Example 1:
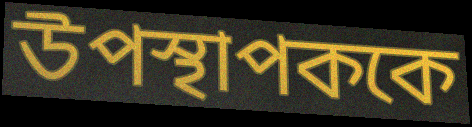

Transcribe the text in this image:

উপস্থাপককে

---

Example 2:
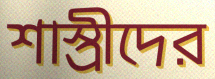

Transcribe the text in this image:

শাস্ত্রীদের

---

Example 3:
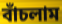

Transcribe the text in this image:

বাঁচলাম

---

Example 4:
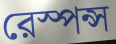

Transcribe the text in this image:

রেস্পন্স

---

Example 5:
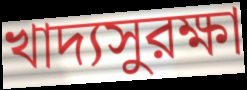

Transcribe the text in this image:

খাদ্যসুরক্ষা